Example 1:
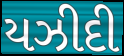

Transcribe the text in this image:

યઝીદી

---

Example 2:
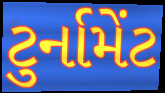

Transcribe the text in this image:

ટુર્નામેંટ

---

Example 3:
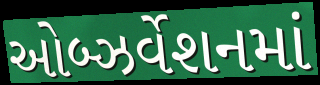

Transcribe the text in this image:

ઓબ્ઝર્વેશનમાં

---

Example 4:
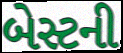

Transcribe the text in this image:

બેસ્ટની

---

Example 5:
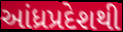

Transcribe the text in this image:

આંધ્રપ્રદેશથી